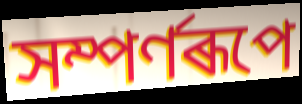
সম্পৰ্ণৰূপে